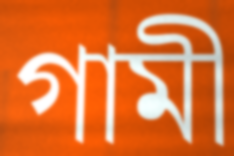
গামী